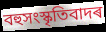
বহুসংস্কৃতিবাদৰ